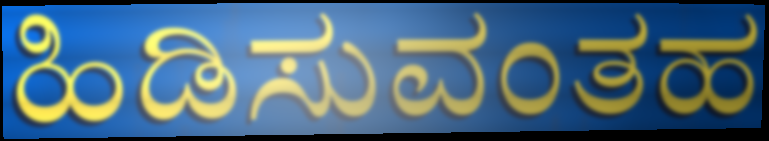
ಹಿಡಿಸುವಂತಹ